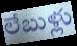
లేబుళ్లు